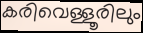
കരിവെള്ളൂരിലും